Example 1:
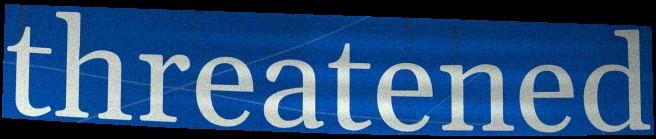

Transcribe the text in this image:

threatened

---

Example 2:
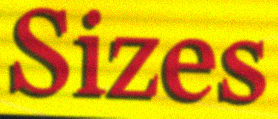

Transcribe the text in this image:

Sizes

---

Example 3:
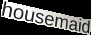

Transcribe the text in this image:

housemaid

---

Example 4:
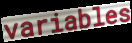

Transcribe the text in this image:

variables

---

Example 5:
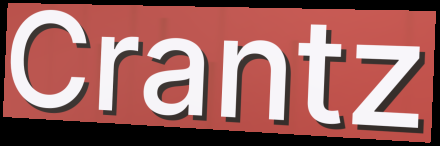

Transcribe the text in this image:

Crantz